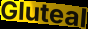
Gluteal